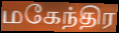
மகேந்திர